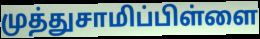
முத்துசாமிப்பிள்ளை